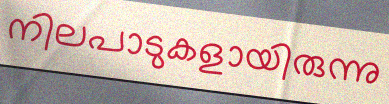
നിലപാടുകളായിരുന്നു